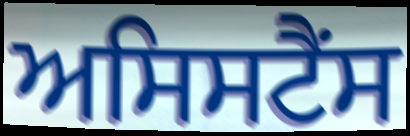
ਅਸਿਸਟੈਂਸ